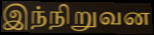
இந்நிறுவன